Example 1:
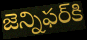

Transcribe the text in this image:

జెన్నిఫర్‌కి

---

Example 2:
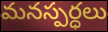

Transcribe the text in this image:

మనస్పర్ధలు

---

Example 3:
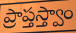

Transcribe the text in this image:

ప్రాప్తస్త్వాం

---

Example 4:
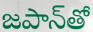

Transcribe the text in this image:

జపాన్‌తో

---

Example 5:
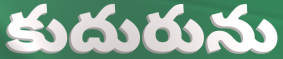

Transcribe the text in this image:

కుదురును